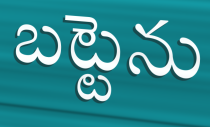
బట్టెను